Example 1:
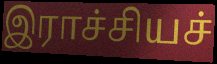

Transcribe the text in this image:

இராச்சியச்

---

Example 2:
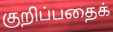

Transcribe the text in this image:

குறிப்பதைக்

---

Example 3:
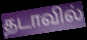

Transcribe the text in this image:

தடாவில்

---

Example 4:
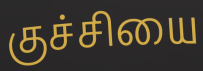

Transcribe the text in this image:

குச்சியை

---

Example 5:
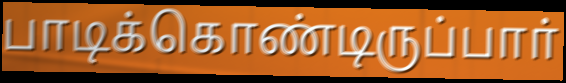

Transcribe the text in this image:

பாடிக்கொண்டிருப்பார்